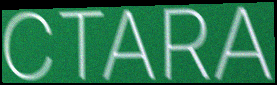
CTARA